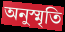
অনুস্মৃতি